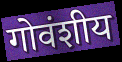
गोवंशीय